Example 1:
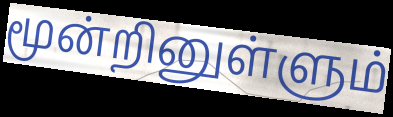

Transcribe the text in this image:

மூன்றினுள்ளும்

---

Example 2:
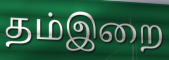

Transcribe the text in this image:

தம்இறை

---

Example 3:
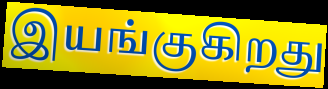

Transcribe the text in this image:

இயங்குகிறது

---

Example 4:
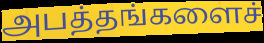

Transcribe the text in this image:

அபத்தங்களைச்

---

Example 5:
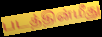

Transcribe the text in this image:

படத்தின்மீது